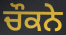
ਚੌਕਨੇ